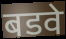
बडवे